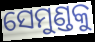
ସେମୁଣ୍ଡକୁ